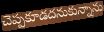
చెప్పకూడదనుకున్నాను